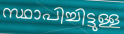
സ്ഥാപിച്ചിട്ടുള്ള